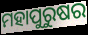
ମହାପୁରୁଷର